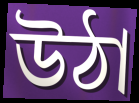
উঠা